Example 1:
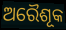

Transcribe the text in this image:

ଅରୈଶୂକ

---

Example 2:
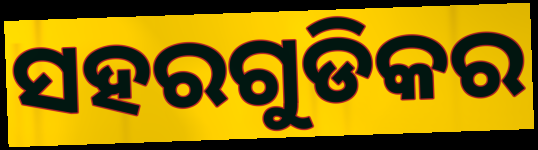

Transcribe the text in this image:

ସହରଗୁଡିକର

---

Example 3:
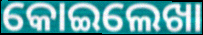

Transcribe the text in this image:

କୋଇଲେଖା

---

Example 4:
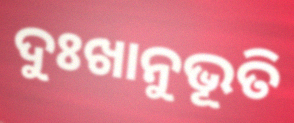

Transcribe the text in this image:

ଦୁଃଖାନୁଭୂତି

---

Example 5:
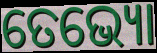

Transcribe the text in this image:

ତେଭ୍ୟୋ